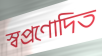
স্বপ্রণোদিত